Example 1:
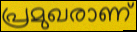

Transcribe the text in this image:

പ്രമുഖരാണ്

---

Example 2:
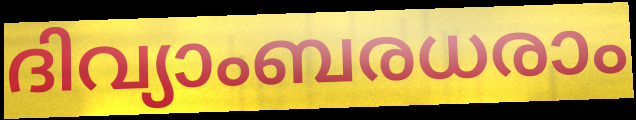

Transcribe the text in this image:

ദിവ്യാംബരധരാം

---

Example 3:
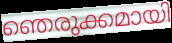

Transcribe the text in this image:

ഞെരുക്കമായി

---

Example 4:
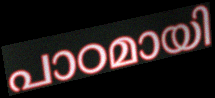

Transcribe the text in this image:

പാഠമായി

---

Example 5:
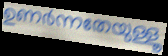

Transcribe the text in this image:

ഉണർന്നതേയുള്ളൂ